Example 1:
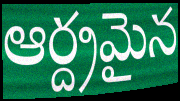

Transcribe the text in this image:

ఆర్ద్రమైన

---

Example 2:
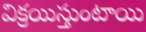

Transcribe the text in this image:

విక్రయిస్తుంటాయి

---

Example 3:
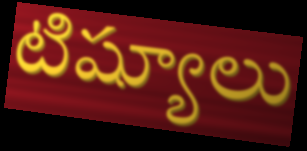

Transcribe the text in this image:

టిష్యూలు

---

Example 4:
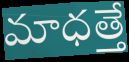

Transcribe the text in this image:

మాధత్తే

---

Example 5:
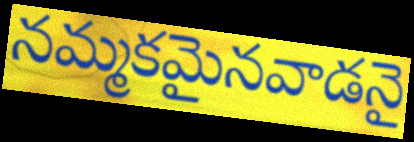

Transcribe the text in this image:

నమ్మకమైనవాడనై